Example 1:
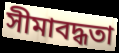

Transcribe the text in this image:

সীমাবদ্ধতা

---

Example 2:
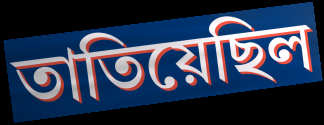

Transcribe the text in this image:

তাতিয়েছিল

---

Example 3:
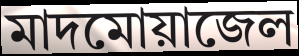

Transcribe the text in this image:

মাদমোয়াজেল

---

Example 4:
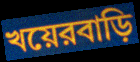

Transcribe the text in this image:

খয়েরবাড়ি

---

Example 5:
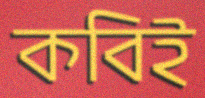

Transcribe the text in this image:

কবিই